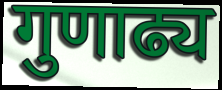
गुणाढ्य